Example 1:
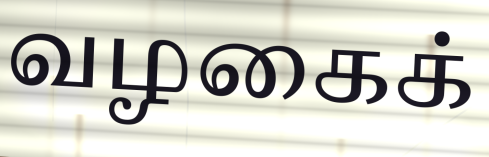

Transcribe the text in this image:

வழகைக்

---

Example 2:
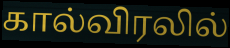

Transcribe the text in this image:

கால்விரலில்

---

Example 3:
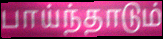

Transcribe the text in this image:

பாய்ந்தாடும்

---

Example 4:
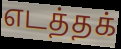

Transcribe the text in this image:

எடத்தக்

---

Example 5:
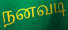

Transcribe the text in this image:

நனவடி